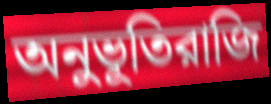
অনুভূতিরাজি